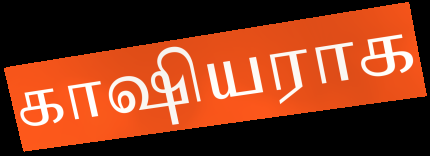
காஷியராக